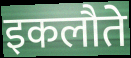
इकलौते